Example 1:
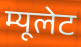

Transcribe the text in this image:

म्यूलेट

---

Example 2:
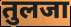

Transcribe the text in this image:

तुलजा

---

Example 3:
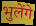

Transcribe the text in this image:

भुलेंगे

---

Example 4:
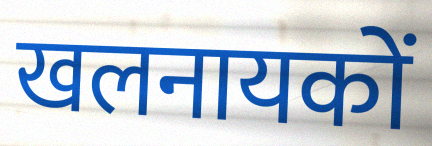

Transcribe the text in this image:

खलनायकों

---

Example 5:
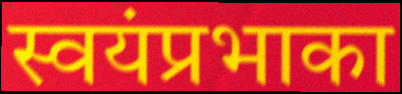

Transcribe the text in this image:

स्वयंप्रभाका